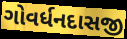
ગોવર્ધનદાસજી